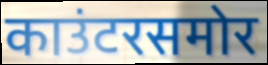
काउंटरसमोर